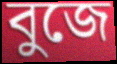
বুজে